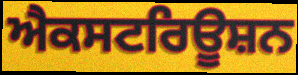
ਐਕਸਟਰਿਊਸ਼ਨ